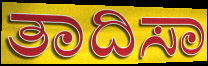
ತಾದಿಸಾ